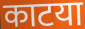
काटया